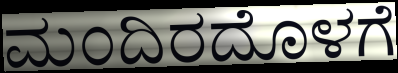
ಮಂದಿರದೊಳಗೆ